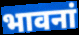
भावनां